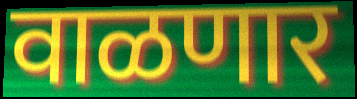
वाळणार